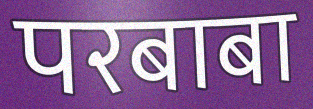
परबाबा